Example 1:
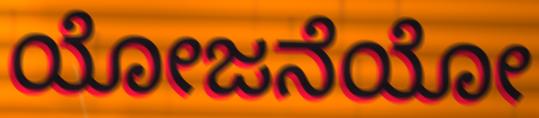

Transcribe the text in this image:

ಯೋಜನೆಯೋ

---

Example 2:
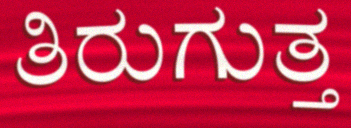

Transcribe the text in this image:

ತಿರುಗುತ್ತ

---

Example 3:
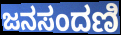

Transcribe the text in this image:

ಜನಸಂದಣಿ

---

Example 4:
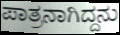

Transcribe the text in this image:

ಪಾತ್ರನಾಗಿದ್ದನು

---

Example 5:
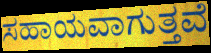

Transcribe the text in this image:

ಸಹಾಯವಾಗುತ್ತವೆ